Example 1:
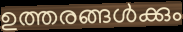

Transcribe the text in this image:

ഉത്തരങ്ങൾക്കും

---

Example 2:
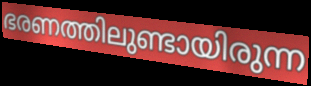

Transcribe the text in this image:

ഭരണത്തിലുണ്ടായിരുന്ന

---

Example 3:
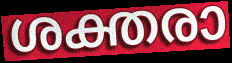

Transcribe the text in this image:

ശക്തരാ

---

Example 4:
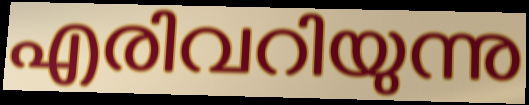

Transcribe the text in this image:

എരിവറിയുന്നു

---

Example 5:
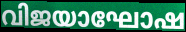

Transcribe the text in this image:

വിജയാഘോഷ